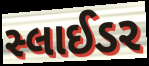
સ્લાઈડર